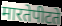
मारतेपीटते